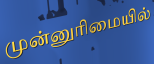
முன்னுரிமையில்